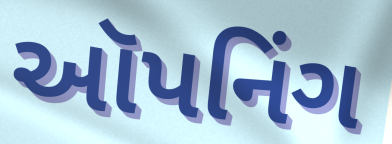
ઑપનિંગ